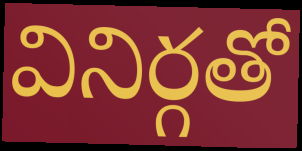
వినిర్గతో